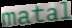
matal